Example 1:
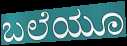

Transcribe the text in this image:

ಬಲೆಯೂ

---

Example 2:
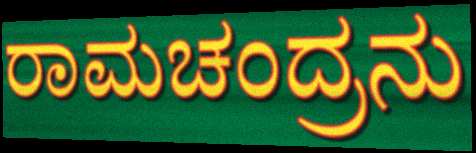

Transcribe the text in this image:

ರಾಮಚಂದ್ರನು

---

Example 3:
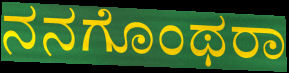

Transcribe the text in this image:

ನನಗೊಂಥರಾ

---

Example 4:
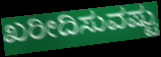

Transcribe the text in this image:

ಖರೀದಿಸುವಷ್ಟು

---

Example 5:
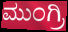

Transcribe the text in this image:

ಮುಂಗ್ರಿ